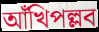
আঁখিপল্লব